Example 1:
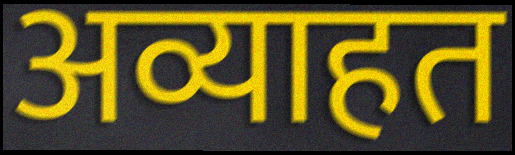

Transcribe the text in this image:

अव्याहत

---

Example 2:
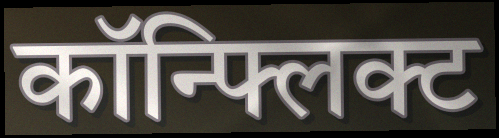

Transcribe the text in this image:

कॉन्फ्लिक्ट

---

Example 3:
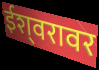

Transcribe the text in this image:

ईश्वरावर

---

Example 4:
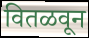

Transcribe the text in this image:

वितळवून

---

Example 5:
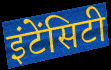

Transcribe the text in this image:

इंटेंसिटी